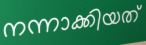
നന്നാക്കിയത്